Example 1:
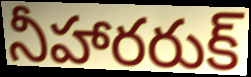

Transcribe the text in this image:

నీహారరుక్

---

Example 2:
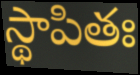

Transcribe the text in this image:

స్థాపితః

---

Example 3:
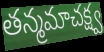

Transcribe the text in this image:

తన్మమాచక్ష్వ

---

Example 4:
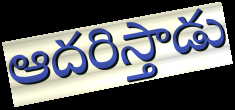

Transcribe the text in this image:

ఆదరిస్తాడు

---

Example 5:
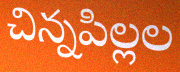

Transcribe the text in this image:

చిన్నపిల్లల